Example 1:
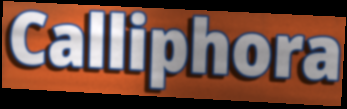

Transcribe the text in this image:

Calliphora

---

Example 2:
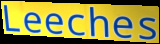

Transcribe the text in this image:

Leeches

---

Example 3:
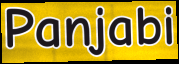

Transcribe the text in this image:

Panjabi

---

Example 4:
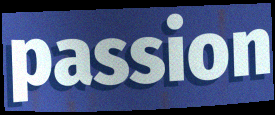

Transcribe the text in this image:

passion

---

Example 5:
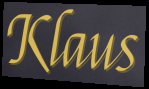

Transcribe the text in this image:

Klaus